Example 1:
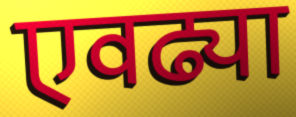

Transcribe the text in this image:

एवढ्या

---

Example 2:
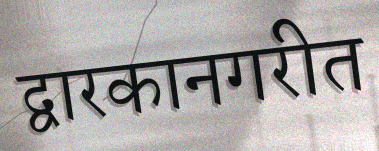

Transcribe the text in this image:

द्वारकानगरीत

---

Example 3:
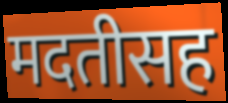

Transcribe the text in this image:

मदतीसह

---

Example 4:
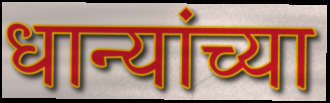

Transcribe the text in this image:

धान्यांच्या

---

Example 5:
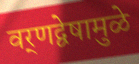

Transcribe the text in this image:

वर्णद्वेषामुळे